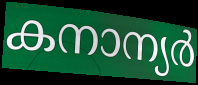
കനാന്യർ